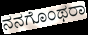
ನನಗೊಂಥರಾ